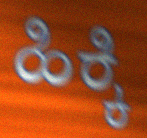
ಹಿಕ್ಕಿ